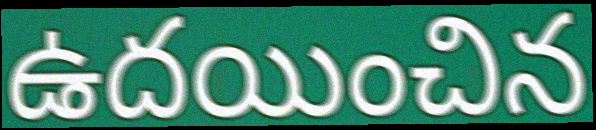
ఉదయించిన